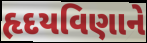
હૃદયવિણાને